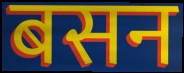
बसन